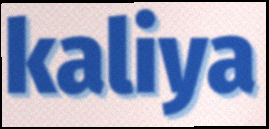
kaliya